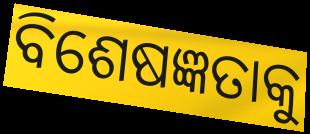
ବିଶେଷଜ୍ଞତାକୁ